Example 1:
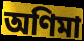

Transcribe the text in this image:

অণিমা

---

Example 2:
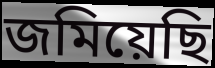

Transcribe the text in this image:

জমিয়েছি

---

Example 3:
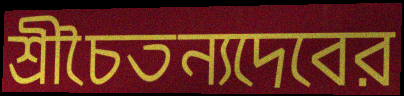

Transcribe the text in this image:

শ্রীচৈতন্যদেবের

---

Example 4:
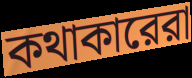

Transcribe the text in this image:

কথাকারেরা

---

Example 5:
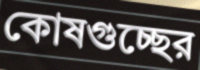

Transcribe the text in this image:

কোষগুচ্ছের